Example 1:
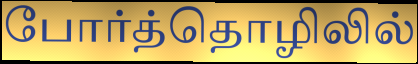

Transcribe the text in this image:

போர்த்தொழிலில்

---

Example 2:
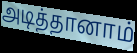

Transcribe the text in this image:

அடித்தானாம்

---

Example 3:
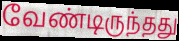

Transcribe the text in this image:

வேண்டிருந்தது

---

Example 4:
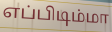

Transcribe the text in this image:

எப்பிடிம்மா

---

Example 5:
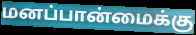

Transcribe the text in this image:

மனப்பான்மைக்கு